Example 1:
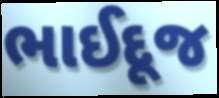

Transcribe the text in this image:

ભાઈદૂજ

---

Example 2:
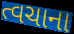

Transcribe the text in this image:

ત્વચાના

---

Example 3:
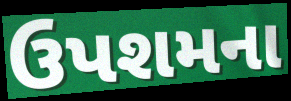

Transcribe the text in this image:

ઉપશમના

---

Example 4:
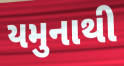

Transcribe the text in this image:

યમુનાથી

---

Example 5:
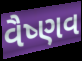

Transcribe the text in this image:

વૈષ્ણવ